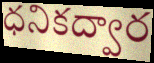
ధనికద్వార